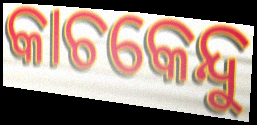
କାଚକେନ୍ଦୁ